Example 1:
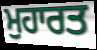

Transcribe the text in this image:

ਮੁਹਾਰਤ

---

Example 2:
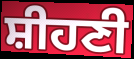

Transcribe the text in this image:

ਸ਼ੀਹਣੀ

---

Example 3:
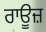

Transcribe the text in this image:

ਰਾਊਜ਼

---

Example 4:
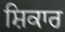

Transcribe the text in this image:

ਸ਼ਿਕਾਰ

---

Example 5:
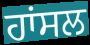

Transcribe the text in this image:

ਹਾਂਸਲ